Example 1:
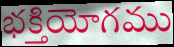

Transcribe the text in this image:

భక్తియోగము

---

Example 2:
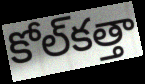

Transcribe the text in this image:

కోల్‌కత్తా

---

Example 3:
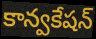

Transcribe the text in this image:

కాన్వకేషన్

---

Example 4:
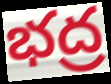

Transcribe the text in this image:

భద్ర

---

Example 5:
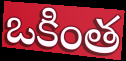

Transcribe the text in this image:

ఒకింత